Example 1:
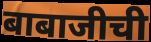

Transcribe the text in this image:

बाबाजीची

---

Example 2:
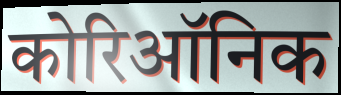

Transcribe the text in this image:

कोरिऑनिक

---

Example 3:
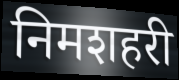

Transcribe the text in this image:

निमशहरी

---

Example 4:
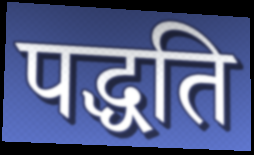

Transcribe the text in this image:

पद्धति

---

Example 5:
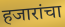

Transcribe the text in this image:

हजारांचा